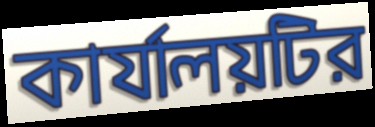
কার্যালয়টির